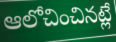
ఆలోచించినట్లే